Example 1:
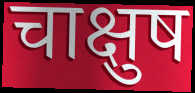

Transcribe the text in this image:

चाक्षुष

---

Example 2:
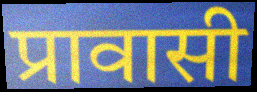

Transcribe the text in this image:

प्रावासी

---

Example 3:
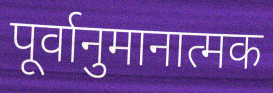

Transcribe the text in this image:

पूर्वानुमानात्मक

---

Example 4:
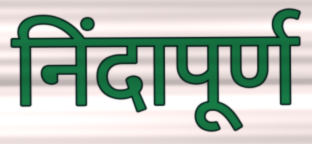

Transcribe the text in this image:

निंदापूर्ण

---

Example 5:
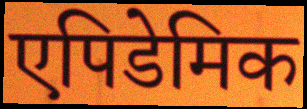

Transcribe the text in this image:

एपिडेमिक